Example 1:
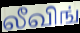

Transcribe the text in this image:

லீவிங்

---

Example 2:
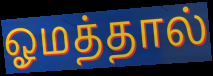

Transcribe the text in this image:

ஓமத்தால்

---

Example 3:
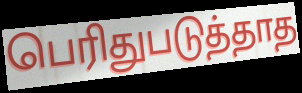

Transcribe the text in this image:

பெரிதுபடுத்தாத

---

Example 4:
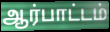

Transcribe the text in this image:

ஆர்பாட்டம்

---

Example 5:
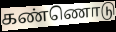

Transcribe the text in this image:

கண்ணொடு